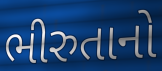
ભીરુતાનો